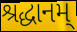
શ્રદ્ધાનમ્